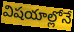
విషయాల్లోనే